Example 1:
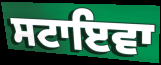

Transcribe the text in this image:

ਸਟਾਇਵਾ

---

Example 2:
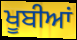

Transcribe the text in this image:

ਖੂਬੀਆਂ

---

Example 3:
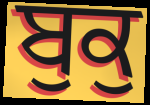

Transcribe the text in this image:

ਬੁਕੁ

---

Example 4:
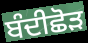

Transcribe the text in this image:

ਬੰਦੀਛੋੜ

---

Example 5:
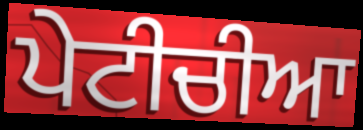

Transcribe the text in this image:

ਪੇਟੀਚੀਆ